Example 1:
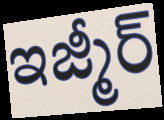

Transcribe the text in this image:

ఇజ్మీర్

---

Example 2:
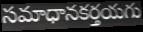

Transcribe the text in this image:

సమాధానకర్తయగు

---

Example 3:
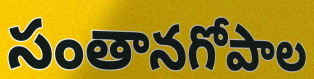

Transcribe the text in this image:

సంతానగోపాల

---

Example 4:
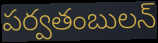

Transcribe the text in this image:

పర్వతంబులన్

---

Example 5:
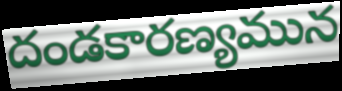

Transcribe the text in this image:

దండకారణ్యమున